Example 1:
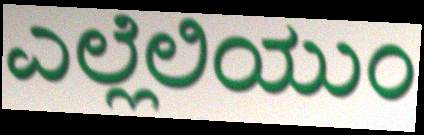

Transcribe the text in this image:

ಎಲ್ಲೆಲಿಯುಂ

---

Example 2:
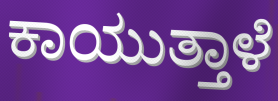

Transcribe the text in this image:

ಕಾಯುತ್ತಾಳೆ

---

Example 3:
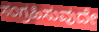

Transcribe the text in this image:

ಸಂಗ್ರಹಿಸುವುದೇ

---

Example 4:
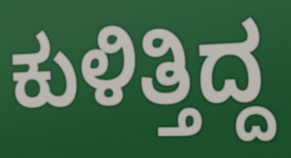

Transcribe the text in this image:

ಕುಳಿತ್ತಿದ್ದ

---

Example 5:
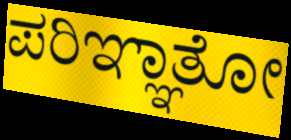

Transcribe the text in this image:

ಪರಿಞ್ಞಾತೋ